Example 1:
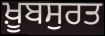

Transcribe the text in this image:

ਖ਼ੂਬਸੁਰਤ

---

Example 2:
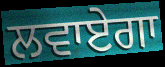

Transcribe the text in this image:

ਲਵਾਏਗਾ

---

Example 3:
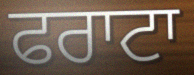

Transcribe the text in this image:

ਫਰਾਟਾ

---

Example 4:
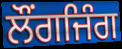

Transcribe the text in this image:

ਲੌਂਗਜਿੰਗ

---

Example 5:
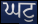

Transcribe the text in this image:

ਘਟੁ